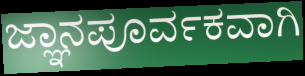
ಜ್ಞಾನಪೂರ್ವಕವಾಗಿ